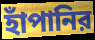
হাঁপানির